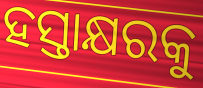
ହସ୍ତାକ୍ଷରକୁ